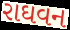
રાઘવન